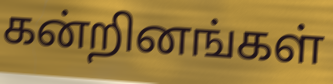
கன்றினங்கள்